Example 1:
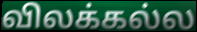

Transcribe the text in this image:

விலக்கல்ல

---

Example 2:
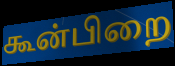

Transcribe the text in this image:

கூன்பிறை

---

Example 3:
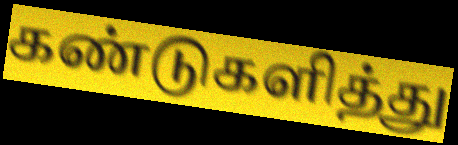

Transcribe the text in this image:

கண்டுகளித்து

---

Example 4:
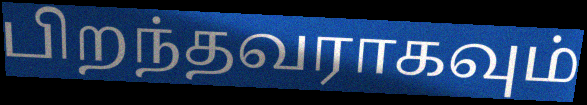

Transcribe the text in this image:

பிறந்தவராகவும்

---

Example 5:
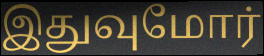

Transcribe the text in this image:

இதுவுமோர்